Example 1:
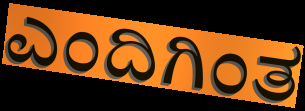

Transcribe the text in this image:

ಎಂದಿಗಿಂತ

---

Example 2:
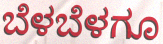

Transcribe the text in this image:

ಬೆಳಬೆಳಗೂ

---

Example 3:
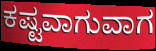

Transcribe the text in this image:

ಕಷ್ಟವಾಗುವಾಗ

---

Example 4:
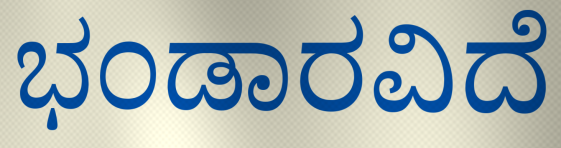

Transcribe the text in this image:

ಭಂಡಾರವಿದೆ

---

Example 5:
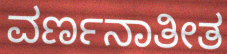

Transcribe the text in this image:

ವರ್ಣನಾತೀತ